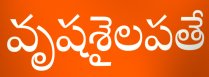
వృషశైలపతే